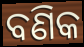
ବଣିକ